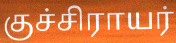
குச்சிராயர்